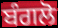
ਬੰਗਲੋ